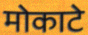
मोकाटे